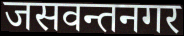
जसवन्तनगर